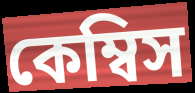
কেম্বিস